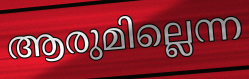
ആരുമില്ലെന്ന